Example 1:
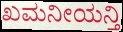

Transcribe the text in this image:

ಖಮನೀಯನ್ತಿ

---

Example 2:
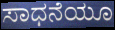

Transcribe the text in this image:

ಸಾಧನೆಯೂ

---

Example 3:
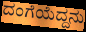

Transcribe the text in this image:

ದಂಗೆಯೆದ್ದನು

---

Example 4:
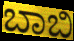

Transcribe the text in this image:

ಬಾಬಿ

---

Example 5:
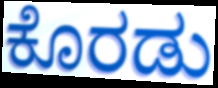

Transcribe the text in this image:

ಕೊರಡು